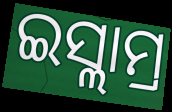
ଇସ୍ଲାମ୍ର